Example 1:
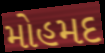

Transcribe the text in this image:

મોહમદ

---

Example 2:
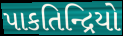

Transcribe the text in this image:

પાકતિન્દ્રિયો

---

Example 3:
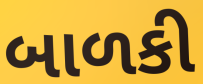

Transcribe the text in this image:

બાળકી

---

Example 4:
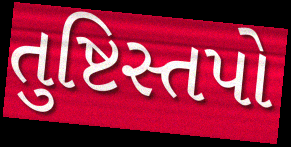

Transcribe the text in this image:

તુષ્ટિસ્તપો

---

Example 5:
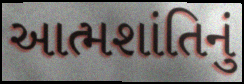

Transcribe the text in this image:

આત્મશાંતિનું